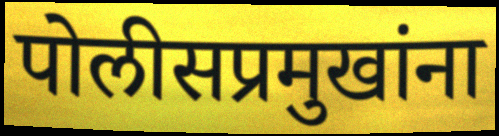
पोलीसप्रमुखांना